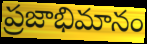
ప్రజాభిమానం